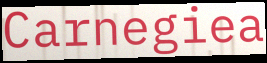
Carnegiea